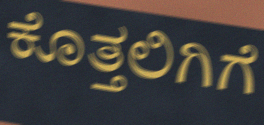
ಕೊತ್ತಲಿಗಿಗೆ